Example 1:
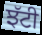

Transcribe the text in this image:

ਝੱਟੀ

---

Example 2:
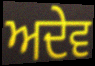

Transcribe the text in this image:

ਅਦੇਵ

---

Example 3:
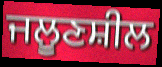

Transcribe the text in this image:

ਜਲੂਣਸ਼ੀਲ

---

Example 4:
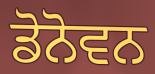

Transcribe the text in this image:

ਡੋਨੋਵਨ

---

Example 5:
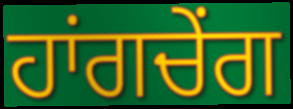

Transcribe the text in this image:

ਹਾਂਗਚੇਂਗ